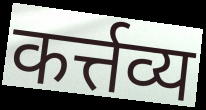
कर्त्तव्य